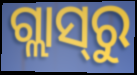
ଗ୍ଲାସ୍‍ରୁ